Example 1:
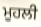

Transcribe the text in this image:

ਮੂਹਲੀ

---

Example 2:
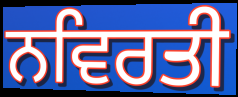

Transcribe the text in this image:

ਨਵਿਰਤੀ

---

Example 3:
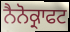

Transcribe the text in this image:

ਨੈਨੋਕ੍ਰਾਫਟ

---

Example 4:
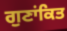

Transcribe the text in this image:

ਗੁਣਾਂਕਿਤ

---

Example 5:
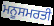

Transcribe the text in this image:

ਮਨੂਸਮਰਤੀ